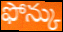
ఫోన్కు